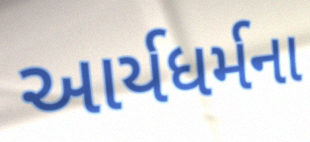
આર્યધર્મના